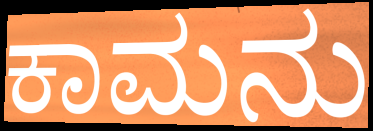
ಕಾಮನು